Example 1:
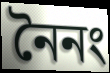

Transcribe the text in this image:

নৈনং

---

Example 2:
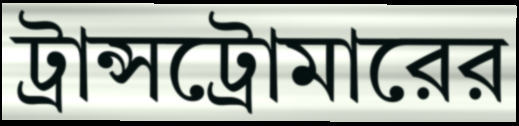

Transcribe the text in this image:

ট্রান্সট্রোমারের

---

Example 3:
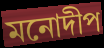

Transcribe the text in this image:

মনোদীপ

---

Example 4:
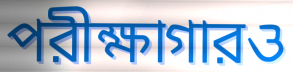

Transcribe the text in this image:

পরীক্ষাগারও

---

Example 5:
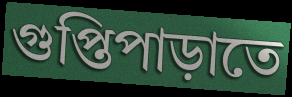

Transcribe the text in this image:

গুপ্তিপাড়াতে